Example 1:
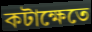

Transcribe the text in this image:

কটাক্ষেতে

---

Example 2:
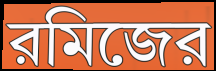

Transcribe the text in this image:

রমিজের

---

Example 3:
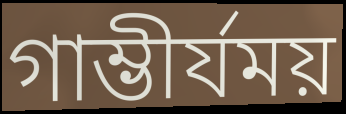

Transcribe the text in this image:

গাম্ভীর্যময়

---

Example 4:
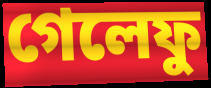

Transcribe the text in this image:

গেলেফু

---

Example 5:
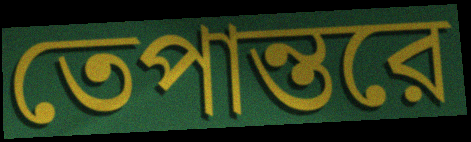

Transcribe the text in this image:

তেপান্তরে